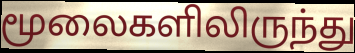
மூலைகளிலிருந்து